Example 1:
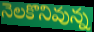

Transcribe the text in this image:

నెలకొనివున్న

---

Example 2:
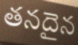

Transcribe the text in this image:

తనదైన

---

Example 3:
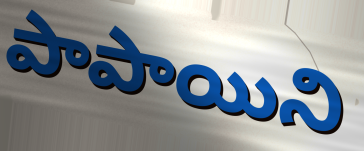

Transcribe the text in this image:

పాపాయిని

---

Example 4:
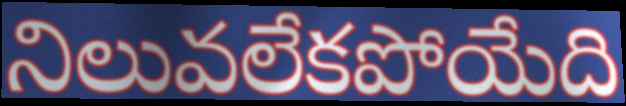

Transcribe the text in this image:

నిలువలేకపోయేది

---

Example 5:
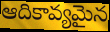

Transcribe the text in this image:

ఆదికావ్యమైన